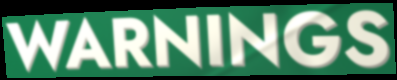
WARNINGS